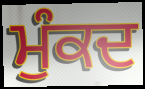
ਮੁੰਕਦ